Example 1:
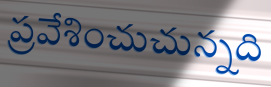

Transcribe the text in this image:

ప్రవేశించుచున్నది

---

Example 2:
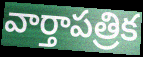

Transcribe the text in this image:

వార్తాపత్రిక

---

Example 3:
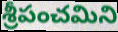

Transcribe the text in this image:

శ్రీపంచమిని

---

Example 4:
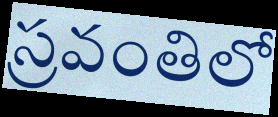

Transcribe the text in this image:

స్రవంతిలో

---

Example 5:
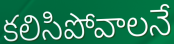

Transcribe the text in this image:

కలిసిపోవాలనే